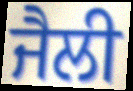
ਜੈਲੀ